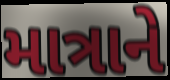
માત્રાને